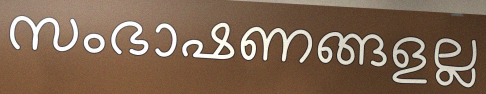
സംഭാഷണങ്ങളല്ല